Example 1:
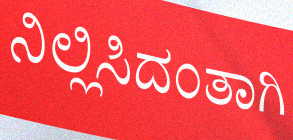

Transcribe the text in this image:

ನಿಲ್ಲಿಸಿದಂತಾಗಿ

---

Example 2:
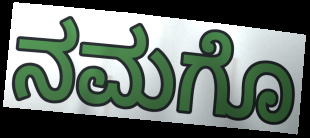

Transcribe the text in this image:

ನಮಗೊ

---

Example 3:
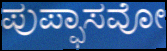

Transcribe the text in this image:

ಪುಪ್ಫಾಸವೋ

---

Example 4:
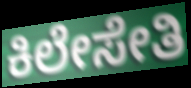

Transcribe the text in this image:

ಕಿಲೇಸೇತಿ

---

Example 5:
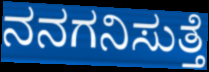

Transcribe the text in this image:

ನನಗನಿಸುತ್ತೆ